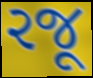
રજૂ